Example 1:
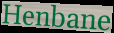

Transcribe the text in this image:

Henbane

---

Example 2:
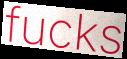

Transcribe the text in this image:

fucks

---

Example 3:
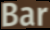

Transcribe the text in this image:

Bar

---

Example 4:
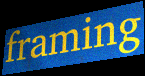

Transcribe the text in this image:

framing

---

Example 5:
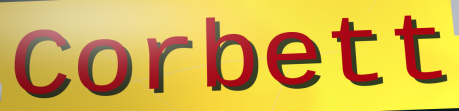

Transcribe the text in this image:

Corbett